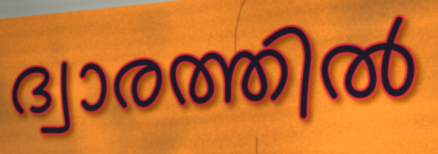
ദ്വാരത്തിൽ